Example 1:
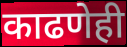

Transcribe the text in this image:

काढणेही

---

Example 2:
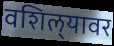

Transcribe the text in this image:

वशिल्यावर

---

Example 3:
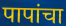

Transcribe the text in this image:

पापांचा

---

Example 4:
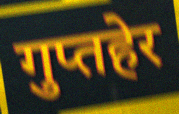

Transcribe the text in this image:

गुप्तहेर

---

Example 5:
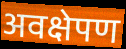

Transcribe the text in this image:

अवक्षेपण